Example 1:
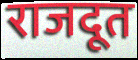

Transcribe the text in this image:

राजदूत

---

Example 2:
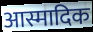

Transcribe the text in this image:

आस्मादिक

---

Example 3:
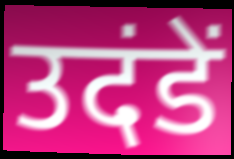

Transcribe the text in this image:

उदंडें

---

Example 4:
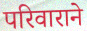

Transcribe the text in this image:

परिवाराने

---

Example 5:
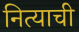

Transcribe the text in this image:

नित्याची